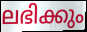
ലഭിക്കും